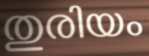
തുരിയം